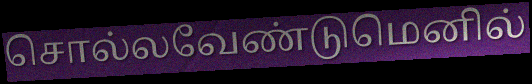
சொல்லவேண்டுமெனில்